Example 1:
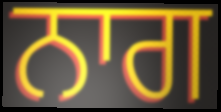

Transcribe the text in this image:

ਨਾਗ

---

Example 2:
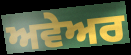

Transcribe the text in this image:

ਅਵੇਅਰ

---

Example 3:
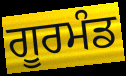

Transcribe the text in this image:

ਗੂਰਮੰਡ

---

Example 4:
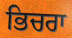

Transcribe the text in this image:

ਭਿਚਰਾ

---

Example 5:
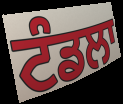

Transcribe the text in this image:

ਟੰਡਲਾ